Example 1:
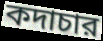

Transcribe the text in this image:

কদাচার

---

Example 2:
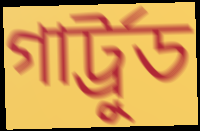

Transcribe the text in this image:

গার্ট্রুড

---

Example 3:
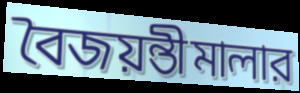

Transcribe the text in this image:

বৈজয়ন্তীমালার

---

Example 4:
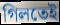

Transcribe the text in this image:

গিলতেই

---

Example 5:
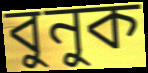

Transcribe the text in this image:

বুনুক